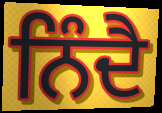
ਨਿੰਦੈ